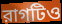
রাগটিও